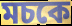
মচকে